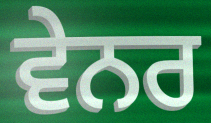
ਵੇਨਰ